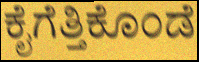
ಕೈಗೆತ್ತಿಕೊಂಡೆ